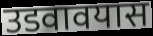
उडवावयास